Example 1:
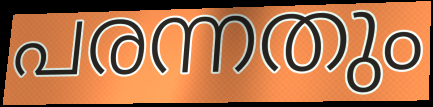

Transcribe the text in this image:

പരന്നതും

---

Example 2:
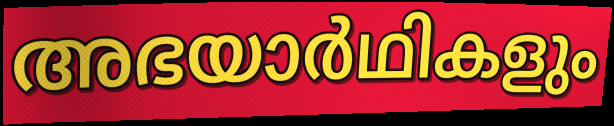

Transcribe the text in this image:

അഭയാർഥികളും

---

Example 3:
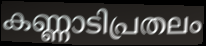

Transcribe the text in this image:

കണ്ണാടിപ്രതലം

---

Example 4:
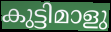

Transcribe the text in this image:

കുട്ടിമാളു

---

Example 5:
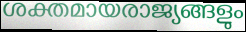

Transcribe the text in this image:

ശക്തമായരാജ്യങ്ങളും